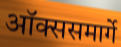
ऑक्ससमार्गे